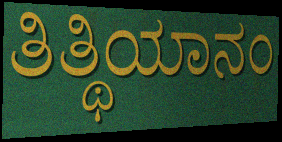
ತಿತ್ಥಿಯಾನಂ